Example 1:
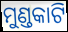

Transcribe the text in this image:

ମୁଣ୍ଡକାଟି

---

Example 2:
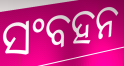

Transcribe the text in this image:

ସଂବହନ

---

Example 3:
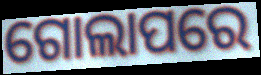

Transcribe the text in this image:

ଗୋଲାପରେ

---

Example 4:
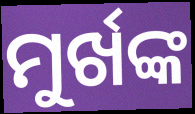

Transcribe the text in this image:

ମୁର୍ଖଙ୍କ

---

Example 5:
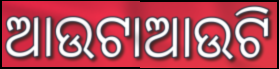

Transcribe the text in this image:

ଆଉଟାଆଉଟି